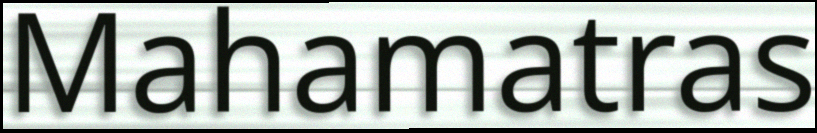
Mahamatras